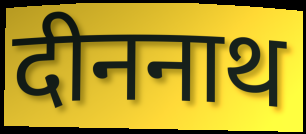
दीननाथ